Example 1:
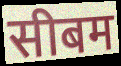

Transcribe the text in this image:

सीबम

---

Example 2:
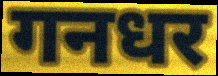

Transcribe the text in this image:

गनधर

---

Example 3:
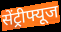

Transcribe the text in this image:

सेंट्रीफ्यूज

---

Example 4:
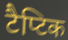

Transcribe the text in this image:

टैप्टिक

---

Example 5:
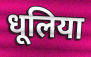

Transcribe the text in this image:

धूलिया